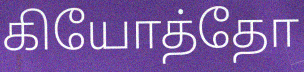
கியோத்தோ